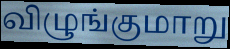
விழுங்குமாறு